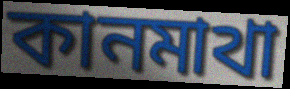
কানমাথা